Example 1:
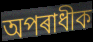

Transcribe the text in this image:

অপৰাধীক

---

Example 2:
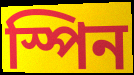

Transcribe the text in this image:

স্পিন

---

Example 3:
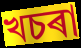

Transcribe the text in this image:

খচৰা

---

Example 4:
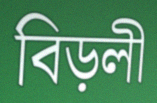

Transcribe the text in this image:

বিড়লী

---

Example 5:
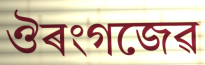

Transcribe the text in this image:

ঔৰংগজেৱ